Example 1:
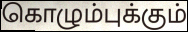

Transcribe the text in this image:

கொழும்புக்கும்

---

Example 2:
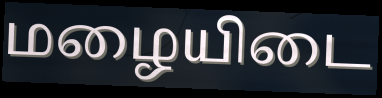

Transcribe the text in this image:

மழையிடை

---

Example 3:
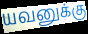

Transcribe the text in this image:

யவனுக்கு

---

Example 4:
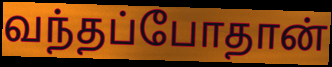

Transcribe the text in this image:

வந்தப்போதான்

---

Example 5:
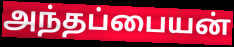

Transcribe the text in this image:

அந்தப்பையன்